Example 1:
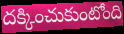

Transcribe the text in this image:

దక్కించుకుంటోంది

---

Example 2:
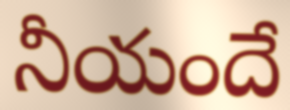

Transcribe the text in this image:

నీయందే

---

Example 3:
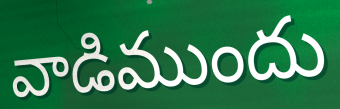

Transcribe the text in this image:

వాడిముందు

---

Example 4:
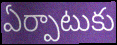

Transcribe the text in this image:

ఏర్పాటుకు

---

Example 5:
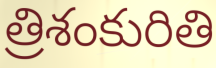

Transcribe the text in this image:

త్రిశంకురితి